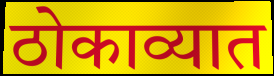
ठोकाव्यात